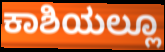
ಕಾಶಿಯಲ್ಲೂ